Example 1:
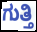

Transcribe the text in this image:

ಗುತ್ತಿ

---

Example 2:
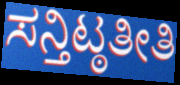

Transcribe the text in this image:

ಸನ್ತಿಟ್ಠತೀತಿ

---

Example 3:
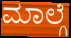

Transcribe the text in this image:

ಮಾಲ್ಗೆ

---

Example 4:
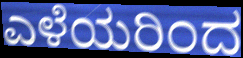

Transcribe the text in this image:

ಎಳೆಯರಿಂದ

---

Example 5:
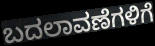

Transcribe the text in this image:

ಬದಲಾವಣೆಗಳಿಗೆ